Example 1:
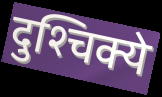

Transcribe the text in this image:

दुश्चिक्ये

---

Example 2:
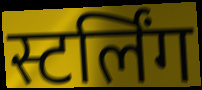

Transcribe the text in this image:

स्टर्लिंग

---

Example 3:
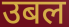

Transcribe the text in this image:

उबल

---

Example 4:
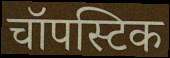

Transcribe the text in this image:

चॉपस्टिक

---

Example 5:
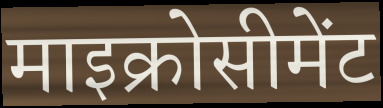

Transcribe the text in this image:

माइक्रोसीमेंट